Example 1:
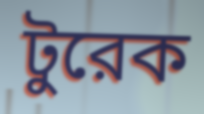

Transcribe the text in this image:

টুরেক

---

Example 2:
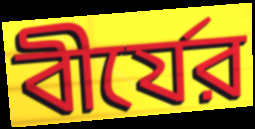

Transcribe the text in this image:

বীর্যের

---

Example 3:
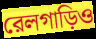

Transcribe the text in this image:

রেলগাড়িও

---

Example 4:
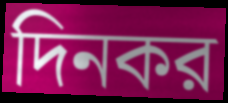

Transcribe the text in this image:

দিনকর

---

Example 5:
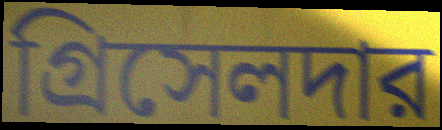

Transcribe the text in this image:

গ্রিসেলদার